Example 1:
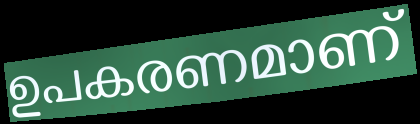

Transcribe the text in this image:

ഉപകരണമാണ്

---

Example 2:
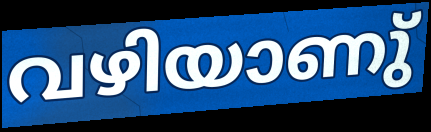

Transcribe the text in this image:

വഴിയാണു്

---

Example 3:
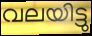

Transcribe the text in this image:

വലയിട്ടു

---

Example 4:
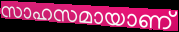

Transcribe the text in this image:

സാഹസമായാണ്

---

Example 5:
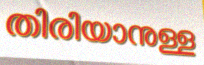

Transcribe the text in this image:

തിരിയാനുള്ള